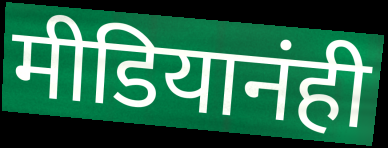
मीडियानंही